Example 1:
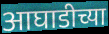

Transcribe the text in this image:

आघाडीच्‍या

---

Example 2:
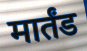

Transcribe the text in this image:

मार्तंड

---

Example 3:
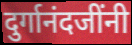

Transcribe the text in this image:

दुर्गानंदजींनी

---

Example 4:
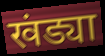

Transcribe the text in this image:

खंड्या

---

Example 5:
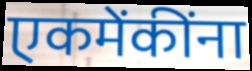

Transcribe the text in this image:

एकमेंकींना